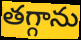
తగ్గాను